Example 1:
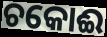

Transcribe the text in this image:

ଚକୋଈ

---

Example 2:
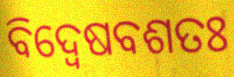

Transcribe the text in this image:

ବିଦ୍ୱେଷବଶତଃ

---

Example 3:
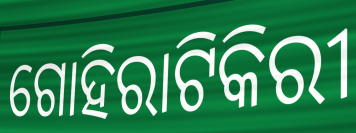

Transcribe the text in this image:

ଗୋହିରାଟିକିରୀ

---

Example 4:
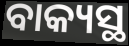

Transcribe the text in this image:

ବାକ୍ୟସ୍ଥ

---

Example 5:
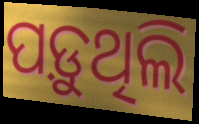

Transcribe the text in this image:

ପଡ଼ୁଥିଲି